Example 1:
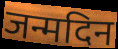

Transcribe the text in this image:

जन्‍मदिन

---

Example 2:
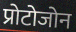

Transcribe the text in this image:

प्रोटोजोन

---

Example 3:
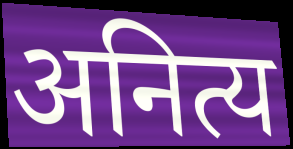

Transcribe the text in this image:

अनित्य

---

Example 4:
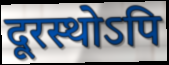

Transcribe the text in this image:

दूरस्थोऽपि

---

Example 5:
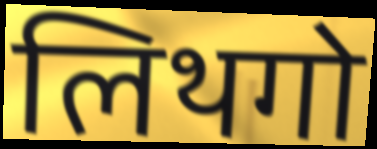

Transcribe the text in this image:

लिथगो